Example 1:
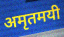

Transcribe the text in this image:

अमृतमयी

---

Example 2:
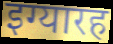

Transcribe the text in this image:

इग्यारह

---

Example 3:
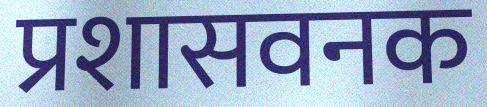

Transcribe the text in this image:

प्रशासवनक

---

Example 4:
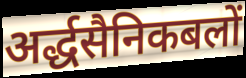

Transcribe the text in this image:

अर्द्धसैनिकबलों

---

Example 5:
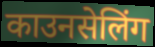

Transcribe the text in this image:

काउनसेलिंग